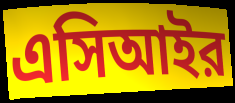
এসিআইর